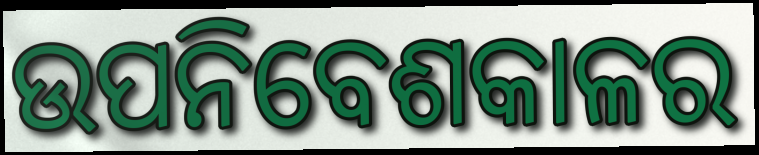
ଉପନିବେଶକାଳର